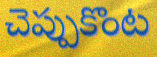
చెప్పుకొంట